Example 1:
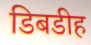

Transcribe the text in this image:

डिबडीह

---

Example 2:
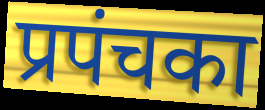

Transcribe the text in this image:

प्रपंचका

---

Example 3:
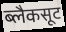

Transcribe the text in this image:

ब्लैकसूट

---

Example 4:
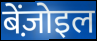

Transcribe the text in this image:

बेंज़ोइल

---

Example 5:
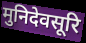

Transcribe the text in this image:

मुनिदेवसूरि